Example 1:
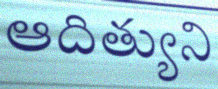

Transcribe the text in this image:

ఆదిత్యుని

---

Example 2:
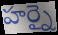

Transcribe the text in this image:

హర్నై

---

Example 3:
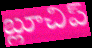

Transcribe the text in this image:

బ్లూచిప్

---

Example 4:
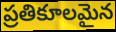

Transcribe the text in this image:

ప్రతికూలమైన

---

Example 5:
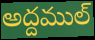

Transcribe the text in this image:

అద్దముల్